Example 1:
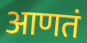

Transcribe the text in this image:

आणतं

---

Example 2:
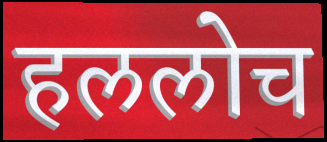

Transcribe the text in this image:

हललोच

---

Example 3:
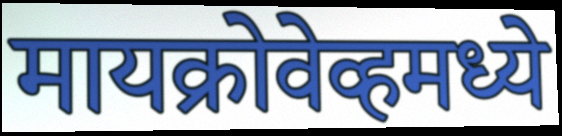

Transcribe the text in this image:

मायक्रोवेव्हमध्ये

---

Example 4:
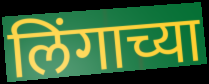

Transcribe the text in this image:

लिंगाच्या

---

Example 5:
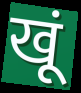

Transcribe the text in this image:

खूं